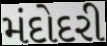
મંદોદરી